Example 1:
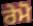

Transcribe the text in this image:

ਰੇਮੋ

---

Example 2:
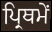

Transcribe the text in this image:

ਪ੍ਰਿਥਮੇਂ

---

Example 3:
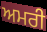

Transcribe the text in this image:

ਅਮਰੀ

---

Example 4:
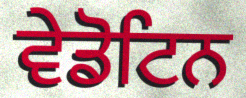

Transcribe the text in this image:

ਵੇਡੋਟਿਨ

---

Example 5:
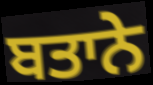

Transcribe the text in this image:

ਬਤਾਨੇ